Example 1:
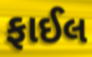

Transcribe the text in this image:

ફાઈલ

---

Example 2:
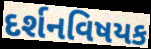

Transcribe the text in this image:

દર્શનવિષયક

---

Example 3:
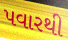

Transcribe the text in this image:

પવારથી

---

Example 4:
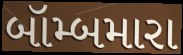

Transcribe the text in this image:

બૉમ્બમારા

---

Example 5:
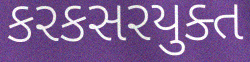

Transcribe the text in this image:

કરકસરયુક્ત